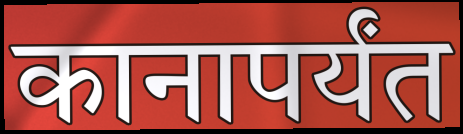
कानापर्यंत